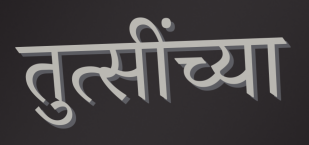
तुत्सींच्या